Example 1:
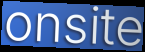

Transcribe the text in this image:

onsite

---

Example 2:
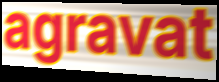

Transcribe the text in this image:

agravat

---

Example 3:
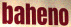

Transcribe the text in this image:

baheno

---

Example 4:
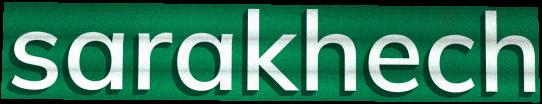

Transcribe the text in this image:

sarakhech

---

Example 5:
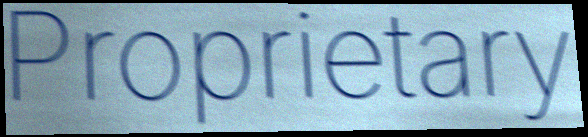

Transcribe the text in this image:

Proprietary